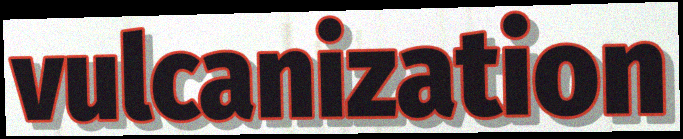
vulcanization